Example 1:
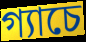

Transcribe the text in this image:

গ্যাচে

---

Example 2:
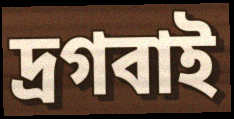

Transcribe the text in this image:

দ্রগবাই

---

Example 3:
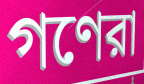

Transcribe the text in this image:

গণেরা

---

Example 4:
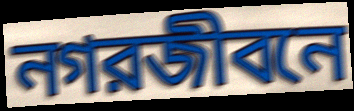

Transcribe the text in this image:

নগরজীবনে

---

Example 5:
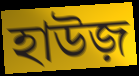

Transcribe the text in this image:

হাউজ়